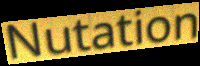
Nutation